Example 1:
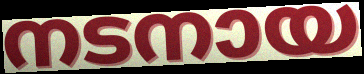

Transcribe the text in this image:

നടനായ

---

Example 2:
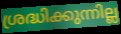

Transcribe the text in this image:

ശ്രദ്ധിക്കുന്നില്ല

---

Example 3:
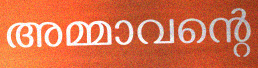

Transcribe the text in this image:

അമ്മാവന്റെ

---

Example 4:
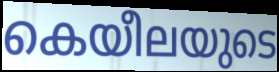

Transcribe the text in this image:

കെയീലയുടെ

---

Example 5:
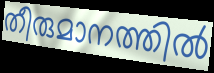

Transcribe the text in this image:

തീരുമാനത്തിൽ